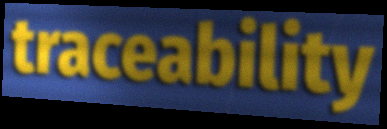
traceability